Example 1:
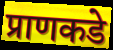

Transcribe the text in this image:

प्राणकडे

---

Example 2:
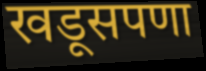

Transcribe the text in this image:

खडूसपणा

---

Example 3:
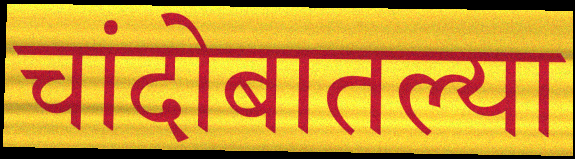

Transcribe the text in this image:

चांदोबातल्या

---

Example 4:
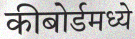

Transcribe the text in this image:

कीबोर्डमध्ये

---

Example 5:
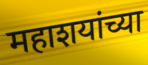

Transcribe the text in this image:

महाशयांच्या